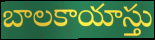
బాలకాయాస్తు